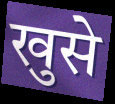
खुसे